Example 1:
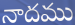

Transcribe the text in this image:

నాదము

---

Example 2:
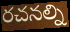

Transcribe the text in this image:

రచనల్ని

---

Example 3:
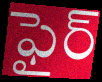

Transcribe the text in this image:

ఫైర్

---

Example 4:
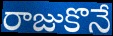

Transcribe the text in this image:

రాజుకొనే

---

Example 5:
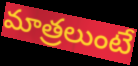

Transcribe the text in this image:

మాత్రలుంటే